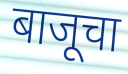
बाजूचा